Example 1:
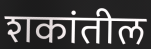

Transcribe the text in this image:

शकांतील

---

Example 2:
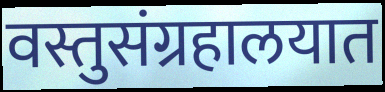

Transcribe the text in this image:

वस्तुसंग्रहालयात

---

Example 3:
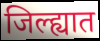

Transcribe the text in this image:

जिल्ह्यात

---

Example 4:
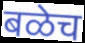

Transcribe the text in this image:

बळेच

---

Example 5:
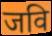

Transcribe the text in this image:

जवि